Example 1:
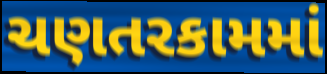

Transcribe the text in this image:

ચણતરકામમાં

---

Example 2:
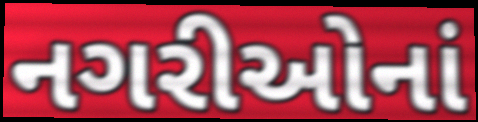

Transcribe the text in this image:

નગરીઓનાં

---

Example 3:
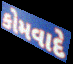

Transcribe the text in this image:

કોમવાદે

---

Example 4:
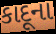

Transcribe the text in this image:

કાદૂના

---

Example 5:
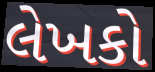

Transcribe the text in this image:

લેખકો